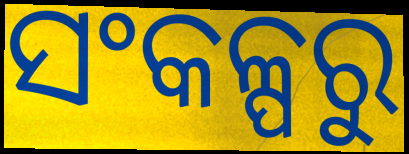
ସଂକଳ୍ପରୁ